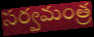
సర్వమంత్ర